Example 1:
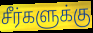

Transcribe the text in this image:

சீர்களுக்கு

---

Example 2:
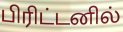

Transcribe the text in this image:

பிரிட்டனில்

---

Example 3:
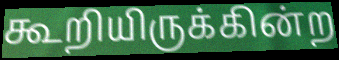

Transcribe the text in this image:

கூறியிருக்கின்ற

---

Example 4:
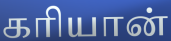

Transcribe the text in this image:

கரியான்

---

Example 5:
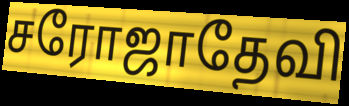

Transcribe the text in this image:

சரோஜாதேவி